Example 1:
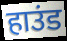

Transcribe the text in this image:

हाउंड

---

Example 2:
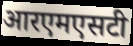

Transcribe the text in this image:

आरएमएसटी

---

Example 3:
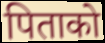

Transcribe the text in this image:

पिताको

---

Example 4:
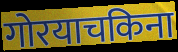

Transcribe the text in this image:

गोरयाचकिना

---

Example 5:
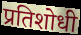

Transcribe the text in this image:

प्रतिशोधी